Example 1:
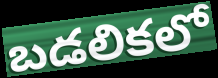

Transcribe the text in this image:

బడలికలో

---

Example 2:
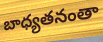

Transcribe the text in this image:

బాధ్యతనంతా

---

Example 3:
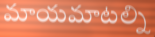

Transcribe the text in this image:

మాయమాటల్ని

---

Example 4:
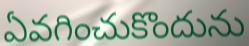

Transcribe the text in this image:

ఏవగించుకొందును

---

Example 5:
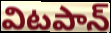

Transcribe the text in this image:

విటపాన్